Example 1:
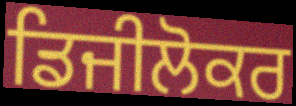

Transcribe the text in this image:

ਡਿਜੀਲੋਕਰ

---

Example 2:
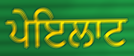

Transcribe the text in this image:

ਪੇਇਲਾਟ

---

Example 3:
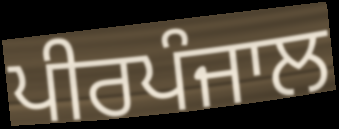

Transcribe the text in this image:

ਪੀਰਪੰਜਾਲ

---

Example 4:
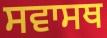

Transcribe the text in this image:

ਸਵਾਸਥ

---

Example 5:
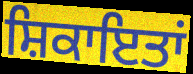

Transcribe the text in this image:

ਸ਼ਿਕਾਇਤਾਂ